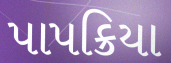
પાપક્રિયા